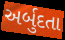
અર્બુદતા